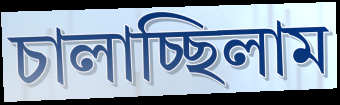
চালাচ্ছিলাম